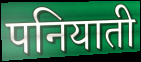
पनियाती